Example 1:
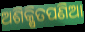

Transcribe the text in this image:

ଅଶିକ୍ଷିତପଣିଆ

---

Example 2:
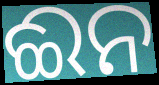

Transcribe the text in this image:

ଈନ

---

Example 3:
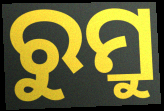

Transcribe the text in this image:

ରୁମ୍ରୁ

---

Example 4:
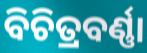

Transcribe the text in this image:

ବିଚିତ୍ରବର୍ଣ୍ଣା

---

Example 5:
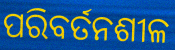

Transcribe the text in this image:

ପରିବର୍ତନଶୀଳ